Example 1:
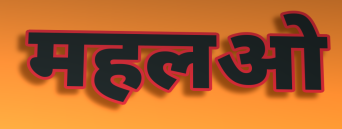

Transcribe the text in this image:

महलओ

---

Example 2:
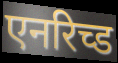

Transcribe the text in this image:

एनरिच्ड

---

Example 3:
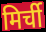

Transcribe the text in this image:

मिर्ची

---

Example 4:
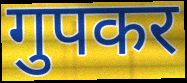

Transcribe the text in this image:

गुपकर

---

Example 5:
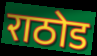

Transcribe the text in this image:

राठोड